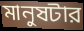
মানুষটার